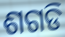
ଶଗଡି